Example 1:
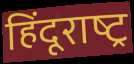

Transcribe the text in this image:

हिंदूराष्ट्र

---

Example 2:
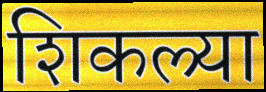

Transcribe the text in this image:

शिकल्या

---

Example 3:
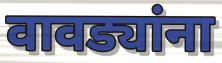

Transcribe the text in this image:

वावड्यांना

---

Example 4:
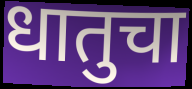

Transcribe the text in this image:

धातुचा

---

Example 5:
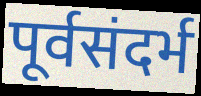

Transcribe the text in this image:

पूर्वसंदर्भ